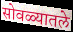
सोवळ्यातले